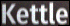
Kettle